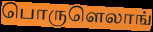
பொருளெலாங்